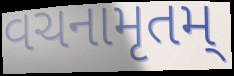
વચનામૃતમ્